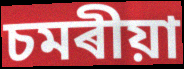
চমৰীয়া